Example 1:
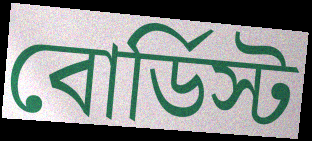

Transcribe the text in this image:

বোর্ডিস্ট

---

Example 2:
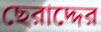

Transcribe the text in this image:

ছেরাদ্দের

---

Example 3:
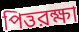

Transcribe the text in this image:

পিত্তরক্ষা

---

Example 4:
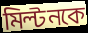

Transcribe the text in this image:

মিল্টনকে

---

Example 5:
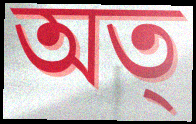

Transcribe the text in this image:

অত্